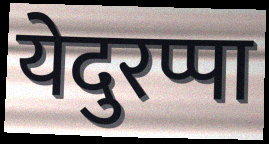
येदुरप्पा